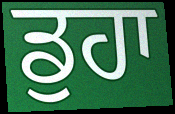
ਡੁਹਾ